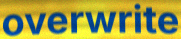
overwrite